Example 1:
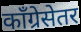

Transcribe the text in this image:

काँग्रेसेतर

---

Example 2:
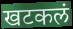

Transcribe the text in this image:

खटकलं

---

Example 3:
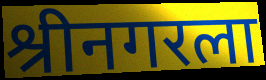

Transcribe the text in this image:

श्रीनगरला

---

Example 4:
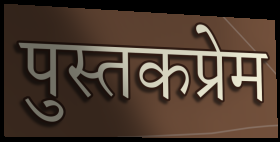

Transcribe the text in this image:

पुस्तकप्रेम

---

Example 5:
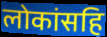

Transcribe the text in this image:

लोकांसहि